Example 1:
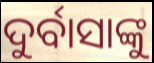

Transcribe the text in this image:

ଦୁର୍ବାସାଙ୍କୁ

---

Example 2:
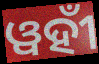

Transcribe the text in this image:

ୱହୀଁ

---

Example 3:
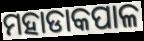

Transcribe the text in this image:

ମହାଡାକପାଳ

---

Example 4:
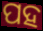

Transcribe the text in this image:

ପହ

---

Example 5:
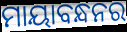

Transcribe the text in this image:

ମାୟାବନ୍ଧନର